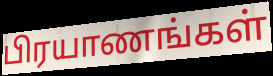
பிரயாணங்கள்